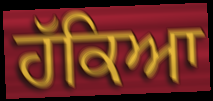
ਹੱਕਿਆ